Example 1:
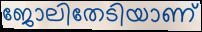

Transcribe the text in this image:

ജോലിതേടിയാണ്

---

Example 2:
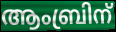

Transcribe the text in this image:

ആംബ്രിന്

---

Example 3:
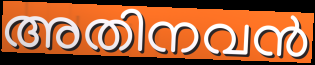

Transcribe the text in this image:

അതിനവൻ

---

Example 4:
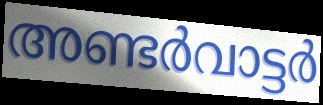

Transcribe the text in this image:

അണ്ടർവാട്ടർ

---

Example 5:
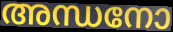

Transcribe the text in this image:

അന്ധനോ